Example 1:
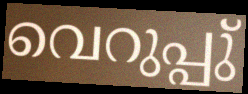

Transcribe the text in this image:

വെറുപ്പു്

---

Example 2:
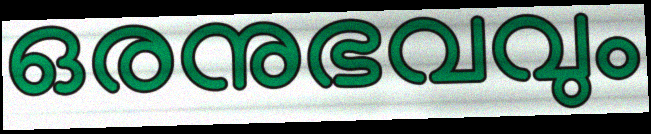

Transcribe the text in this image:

ഒരനുഭവവും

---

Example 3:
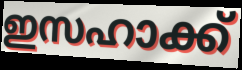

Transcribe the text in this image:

ഇസഹാക്ക്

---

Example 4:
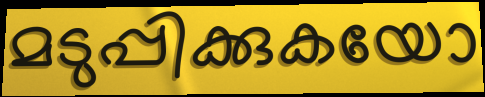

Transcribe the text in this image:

മടുപ്പിക്കുകയോ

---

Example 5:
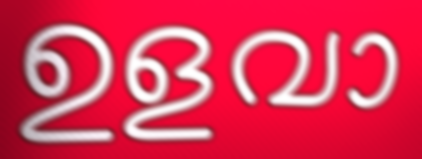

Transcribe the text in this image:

ഉളവാ